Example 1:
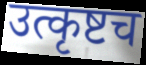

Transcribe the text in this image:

उत्कृष्टच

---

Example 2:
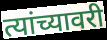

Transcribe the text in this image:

त्यांच्यावरी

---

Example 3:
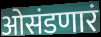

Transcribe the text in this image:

ओसंडणारं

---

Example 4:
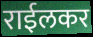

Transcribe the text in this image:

राईलकर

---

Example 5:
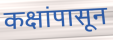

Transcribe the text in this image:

कक्षांपासून